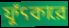
ফুঁৎকারে